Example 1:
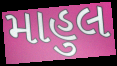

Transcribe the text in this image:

માહુલ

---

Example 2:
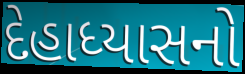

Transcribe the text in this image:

દેહાધ્યાસનો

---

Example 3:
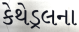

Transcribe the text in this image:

કેથેડ્રલના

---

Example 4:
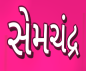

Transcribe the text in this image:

સેમચંદ્ર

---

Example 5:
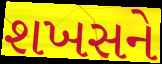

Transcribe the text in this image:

શખસને